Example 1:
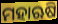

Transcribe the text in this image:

ମହାଋଷି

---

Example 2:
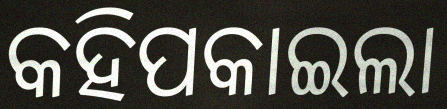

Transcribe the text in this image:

କହିପକାଇଲା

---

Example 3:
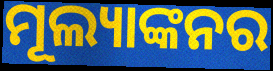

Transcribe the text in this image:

ମୂଲ୍ୟାଙ୍କନର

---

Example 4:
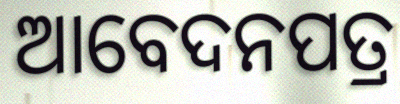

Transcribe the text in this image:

ଆବେଦନପତ୍ର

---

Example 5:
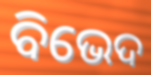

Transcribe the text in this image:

ବିଭେଦ